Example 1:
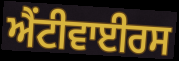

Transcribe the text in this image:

ਐਂਟੀਵਾਈਰਸ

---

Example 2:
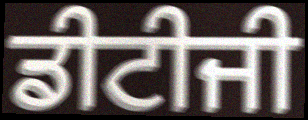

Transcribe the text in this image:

ਡੀਟੀਜੀ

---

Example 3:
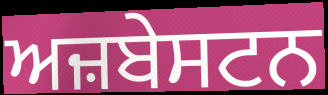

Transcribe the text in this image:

ਅਜ਼ਬੇਸਟਨ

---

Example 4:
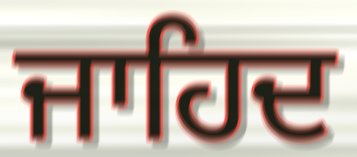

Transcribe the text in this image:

ਜਾਹਿਦ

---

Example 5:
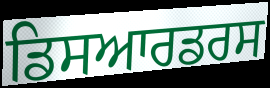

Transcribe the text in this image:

ਡਿਸਆਰਡਰਸ